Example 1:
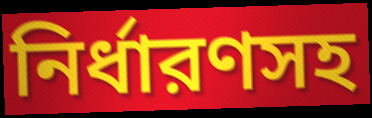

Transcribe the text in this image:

নির্ধারণসহ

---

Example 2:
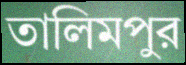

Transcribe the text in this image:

তালিমপুর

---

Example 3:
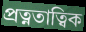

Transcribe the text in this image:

প্রত্নতাত্বিক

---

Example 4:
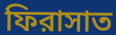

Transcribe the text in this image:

ফিরাসাত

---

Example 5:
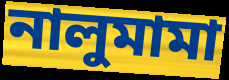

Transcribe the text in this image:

নালুমামা